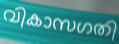
വികാസഗതി